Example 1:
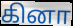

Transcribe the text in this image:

கினா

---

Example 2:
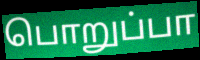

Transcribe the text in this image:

பொறுப்பா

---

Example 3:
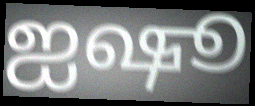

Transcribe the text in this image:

ஐஷூ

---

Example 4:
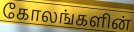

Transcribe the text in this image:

கோலங்களின்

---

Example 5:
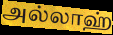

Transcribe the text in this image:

அல்லாஹ்